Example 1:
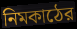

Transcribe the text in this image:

নিমকাঠের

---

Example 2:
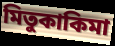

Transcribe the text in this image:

মিতুকাকিমা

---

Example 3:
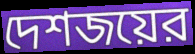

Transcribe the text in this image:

দেশজয়ের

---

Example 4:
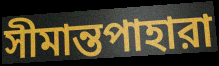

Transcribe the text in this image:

সীমান্তপাহারা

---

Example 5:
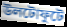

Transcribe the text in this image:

উলটোফুটে